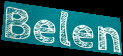
Belen